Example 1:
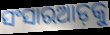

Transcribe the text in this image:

ସଂସାରଆଡ଼କୁ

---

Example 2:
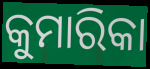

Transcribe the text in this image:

କୁମାରିକା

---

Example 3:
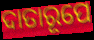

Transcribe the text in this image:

ଦାତାରୂପେ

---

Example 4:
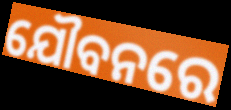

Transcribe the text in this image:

ଯୌବନରେ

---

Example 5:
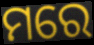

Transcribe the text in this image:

ମରେ